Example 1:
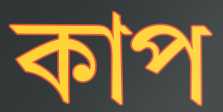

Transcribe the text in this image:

কাপ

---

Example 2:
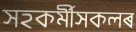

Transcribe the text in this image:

সহকৰ্মীসকলৰ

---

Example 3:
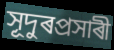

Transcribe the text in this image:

সূদুৰপ্ৰসাৰী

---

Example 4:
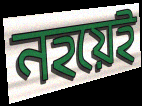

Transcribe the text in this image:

নহয়েই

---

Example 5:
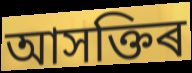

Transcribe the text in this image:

আসক্তিৰ